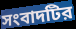
সংবাদটির